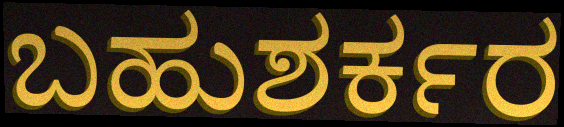
ಬಹುಶರ್ಕರ